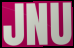
JNU